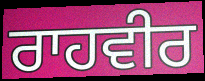
ਰਾਹਵੀਰ